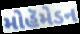
મોહૅમેડન